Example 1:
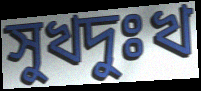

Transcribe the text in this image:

সুখদুঃখ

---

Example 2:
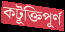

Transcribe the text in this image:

কটূক্তিপূর্ণ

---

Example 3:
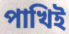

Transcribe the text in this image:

পাখিই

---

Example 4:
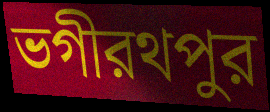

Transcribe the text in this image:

ভগীরথপুর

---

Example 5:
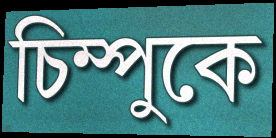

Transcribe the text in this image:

চিম্পুকে